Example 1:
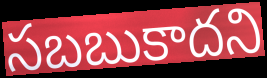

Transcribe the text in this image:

సబబుకాదని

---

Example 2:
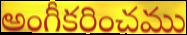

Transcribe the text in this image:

అంగీకరించము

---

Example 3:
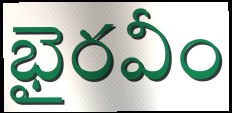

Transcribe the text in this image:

భైరవీం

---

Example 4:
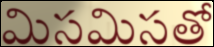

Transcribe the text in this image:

మిసమిసతో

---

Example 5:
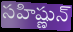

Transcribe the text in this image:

సహిష్ణున్